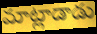
మాట్లాడాడు